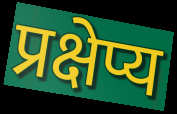
प्रक्षेप्य